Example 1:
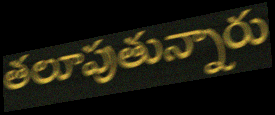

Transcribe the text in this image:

తలూపుతున్నారు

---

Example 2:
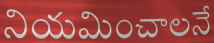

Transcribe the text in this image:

నియమించాలనే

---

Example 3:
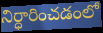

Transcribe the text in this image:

నిర్ధారించడంలో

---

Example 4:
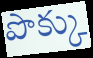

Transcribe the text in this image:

పొక్కు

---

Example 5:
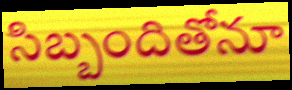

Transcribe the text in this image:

సిబ్బందితోనూ